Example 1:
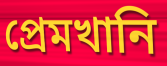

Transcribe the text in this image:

প্রেমখানি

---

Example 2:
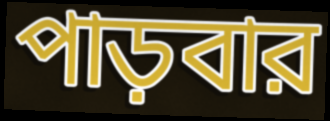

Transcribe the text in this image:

পাড়বার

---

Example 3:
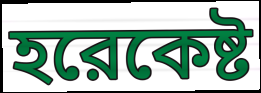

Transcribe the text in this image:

হরেকেষ্ট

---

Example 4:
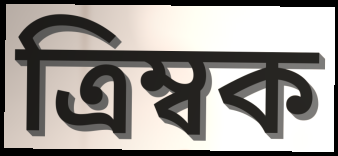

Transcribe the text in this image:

ত্রিম্বক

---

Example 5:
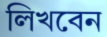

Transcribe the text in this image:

লিখবেন